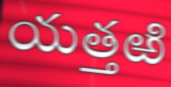
యత్తఱి